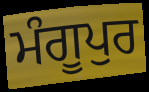
ਮੰਗੂਪੁਰ